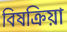
বিষক্রিয়া